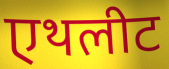
एथलीट